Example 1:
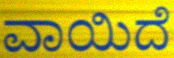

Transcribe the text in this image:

ವಾಯಿದೆ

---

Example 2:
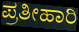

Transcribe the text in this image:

ಪ್ರತೀಹಾರಿ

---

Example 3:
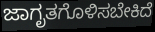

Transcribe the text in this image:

ಜಾಗೃತಗೊಳಿಸಬೇಕಿದೆ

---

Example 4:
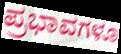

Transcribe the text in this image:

ಪ್ರಭಾವಗಳೂ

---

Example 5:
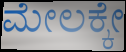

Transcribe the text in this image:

ಮೇಲಕ್ಕೇ